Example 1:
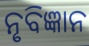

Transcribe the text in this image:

ନୃବିଜ୍ଞାନ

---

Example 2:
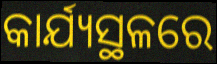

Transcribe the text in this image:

କାର୍ଯ୍ୟସ୍ଥଳରେ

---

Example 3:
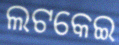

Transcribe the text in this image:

ଲଟକେଇ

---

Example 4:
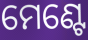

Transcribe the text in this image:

ମେଣ୍ଟେ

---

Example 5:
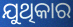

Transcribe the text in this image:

ଯୁଥିକାର